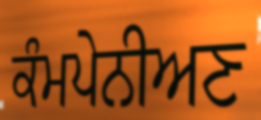
ਕੰਮਪੇਨੀਅਣ